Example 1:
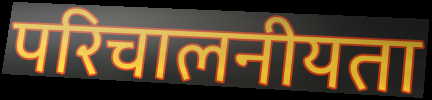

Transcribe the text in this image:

परिचालनीयता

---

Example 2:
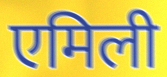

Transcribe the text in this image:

एमिली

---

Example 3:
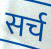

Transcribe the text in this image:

सर्च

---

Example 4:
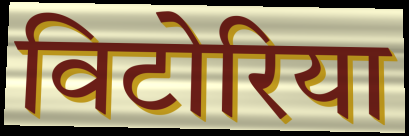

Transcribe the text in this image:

विटोरिया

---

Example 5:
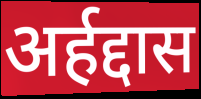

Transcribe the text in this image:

अर्हद्दास